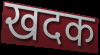
खदक